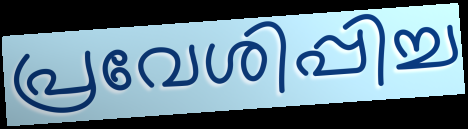
പ്രവേശിപ്പിച്ച